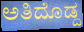
ಅತಿದೊಡ್ದ